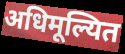
अधिमूल्यित